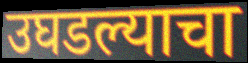
उघडल्याचा